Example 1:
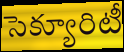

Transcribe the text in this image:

సెక్యూరిటీ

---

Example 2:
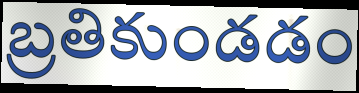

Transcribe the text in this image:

బ్రతికుండడం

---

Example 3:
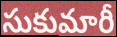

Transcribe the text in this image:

సుకుమారీ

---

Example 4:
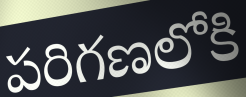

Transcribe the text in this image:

పరిగణలోకి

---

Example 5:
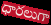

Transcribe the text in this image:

ధారలుగా